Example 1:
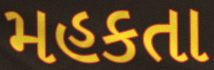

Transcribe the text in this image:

મહકતા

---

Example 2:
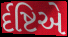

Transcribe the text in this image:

ર્દષ્ટિએ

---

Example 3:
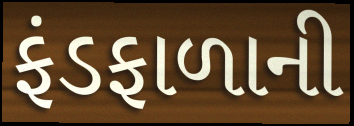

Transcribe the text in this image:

ફંડફાળાની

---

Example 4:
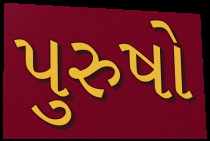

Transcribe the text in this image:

પુરુષો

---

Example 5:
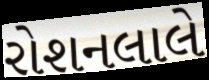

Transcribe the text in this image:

રોશનલાલે